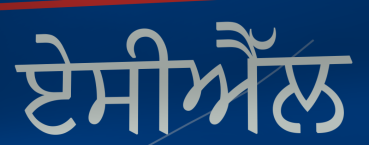
ਏਸੀਐੱਲ